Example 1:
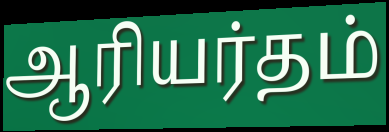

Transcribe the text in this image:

ஆரியர்தம்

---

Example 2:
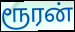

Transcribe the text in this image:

ரூரன்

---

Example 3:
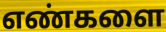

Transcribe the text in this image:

எண்களை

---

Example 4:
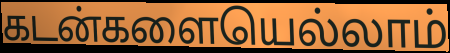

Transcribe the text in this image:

கடன்களையெல்லாம்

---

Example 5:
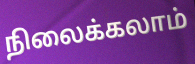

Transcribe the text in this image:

நிலைக்கலாம்